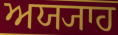
ਅਯ੍ਯਾਹ